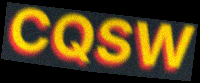
CQSW